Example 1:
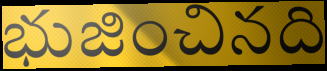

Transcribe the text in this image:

భుజించినది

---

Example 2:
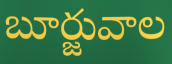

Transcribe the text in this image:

బూర్జువాల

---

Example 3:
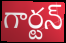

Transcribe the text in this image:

గార్టన్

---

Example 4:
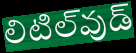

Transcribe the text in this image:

లిటిల్‌వుడ్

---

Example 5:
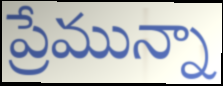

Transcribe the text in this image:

ప్రేమున్నా